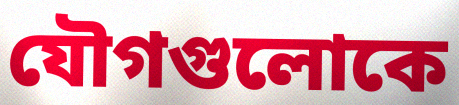
যৌগগুলোকে